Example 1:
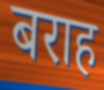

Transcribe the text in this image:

बराह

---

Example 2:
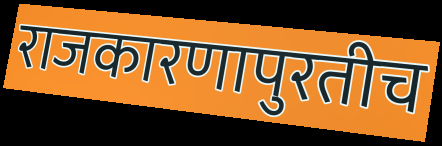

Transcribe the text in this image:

राजकारणापुरतीच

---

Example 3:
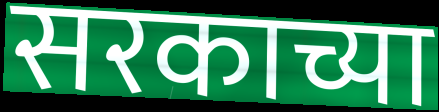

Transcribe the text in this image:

सरकाच्या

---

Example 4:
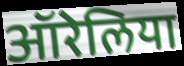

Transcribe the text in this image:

ऑरेलिया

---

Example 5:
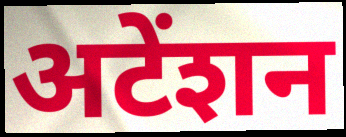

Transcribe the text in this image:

अटेंशन